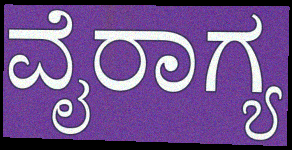
ವೈರಾಗ್ಯ